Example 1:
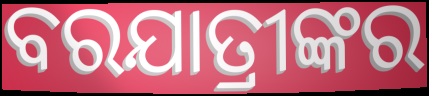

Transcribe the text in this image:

ବରଯାତ୍ରୀଙ୍କର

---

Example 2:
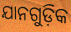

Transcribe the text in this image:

ଯାନଗୁଡ଼ିକ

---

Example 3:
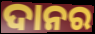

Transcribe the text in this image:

ଦାନର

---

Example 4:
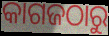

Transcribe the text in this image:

କାଗଜଠାରୁ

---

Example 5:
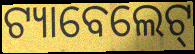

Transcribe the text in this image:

ଟ୍ୟାବେଲେଟ୍